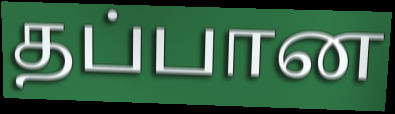
தப்பான